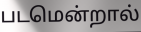
படமென்றால்